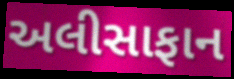
અલીસાફાન